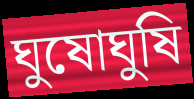
ঘুষোঘুষি